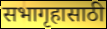
सभागृहासाठी